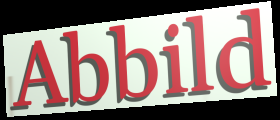
Abbild